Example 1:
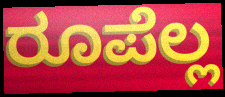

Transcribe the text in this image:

ರೂಪೆಲ್ಲ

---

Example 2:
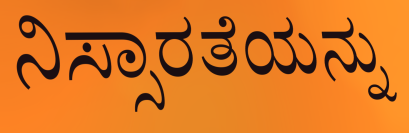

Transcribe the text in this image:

ನಿಸ್ಸಾರತೆಯನ್ನು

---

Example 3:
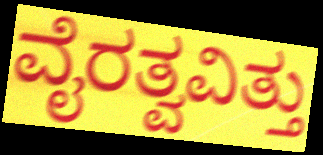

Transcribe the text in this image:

ವೈರತ್ವವಿತ್ತು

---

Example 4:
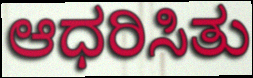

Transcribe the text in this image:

ಆಧರಿಸಿತು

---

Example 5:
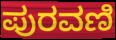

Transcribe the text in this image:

ಪುರವಣಿ